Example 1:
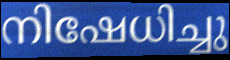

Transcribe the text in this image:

നിഷേധിച്ചു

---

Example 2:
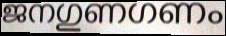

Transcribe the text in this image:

ജനഗുണഗണം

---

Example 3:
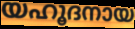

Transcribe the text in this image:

യഹൂദനായ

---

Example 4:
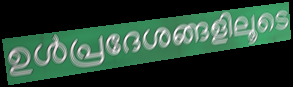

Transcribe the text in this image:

ഉൾപ്രദേശങ്ങളിലൂടെ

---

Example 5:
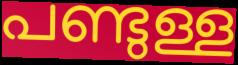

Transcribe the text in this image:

പണ്ടുള്ള